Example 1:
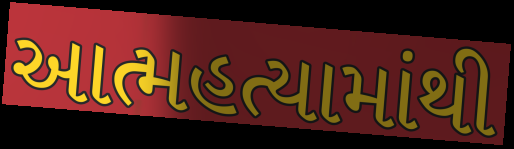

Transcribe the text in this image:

આત્મહત્યામાંથી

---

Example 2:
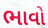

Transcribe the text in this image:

ભાવો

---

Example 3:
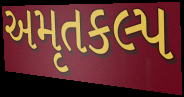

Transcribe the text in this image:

અમૃતકલ્પ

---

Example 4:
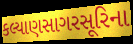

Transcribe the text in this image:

કલ્યાણસાગરસૂરિના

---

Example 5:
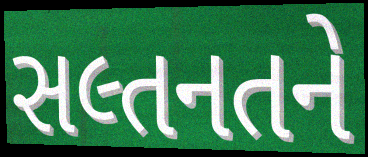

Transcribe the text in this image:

સલ્તનતને